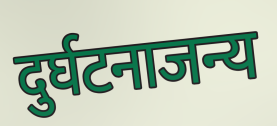
दुर्घटनाजन्य